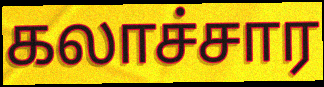
கலாச்சார